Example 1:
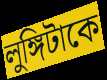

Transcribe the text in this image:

লুঙ্গিটাকে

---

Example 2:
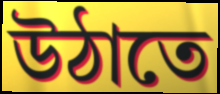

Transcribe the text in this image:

উঠাতে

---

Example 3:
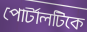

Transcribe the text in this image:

পোর্টালটিকে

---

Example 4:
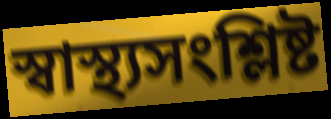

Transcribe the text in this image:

স্বাস্থ্যসংশ্লিষ্ট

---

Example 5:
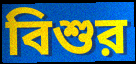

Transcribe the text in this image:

বিশুর